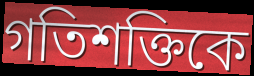
গতিশক্তিকে